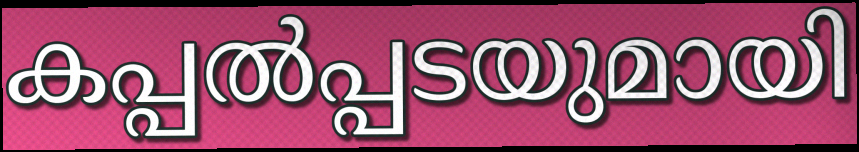
കപ്പൽപ്പടയുമായി